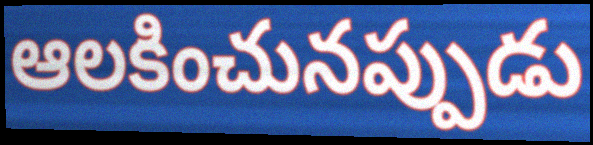
ఆలకించునప్పుడు